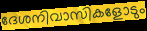
ദേശനിവാസികളോടും